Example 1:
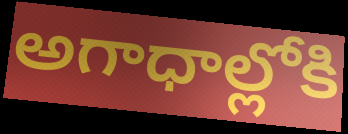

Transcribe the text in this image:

అగాధాల్లోకి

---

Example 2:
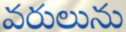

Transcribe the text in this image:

వరులును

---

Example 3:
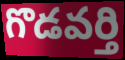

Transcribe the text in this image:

గొడవర్తి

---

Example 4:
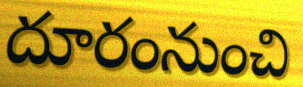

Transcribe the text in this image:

దూరంనుంచి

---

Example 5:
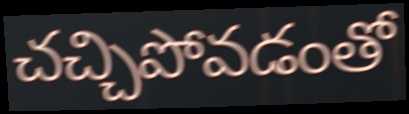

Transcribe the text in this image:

చచ్చిపోవడంతో